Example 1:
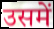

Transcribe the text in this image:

उसमें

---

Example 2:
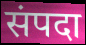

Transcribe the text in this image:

संपदा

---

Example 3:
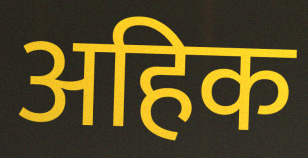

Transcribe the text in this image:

अहिक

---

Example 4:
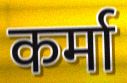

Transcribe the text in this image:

कर्मा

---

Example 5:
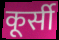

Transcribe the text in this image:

कूर्सी